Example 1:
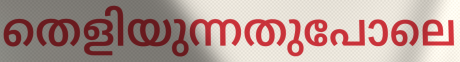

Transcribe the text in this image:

തെളിയുന്നതുപോലെ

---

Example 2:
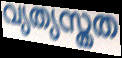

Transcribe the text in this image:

വ്യത്യസ്തത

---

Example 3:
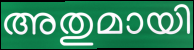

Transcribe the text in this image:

അതുമായി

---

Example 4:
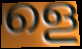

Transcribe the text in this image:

ളെ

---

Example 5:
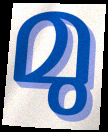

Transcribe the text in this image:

മു